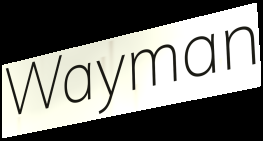
Wayman